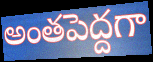
అంతపెద్దగా